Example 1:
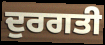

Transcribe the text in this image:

ਦੁਰਗਤੀ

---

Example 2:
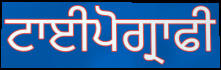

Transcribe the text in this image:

ਟਾਈਪੋਗ੍ਰਾਫੀ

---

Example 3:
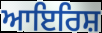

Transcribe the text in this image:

ਆਇਰਿਸ਼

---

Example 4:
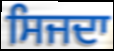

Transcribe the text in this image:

ਸਿਜਦਾ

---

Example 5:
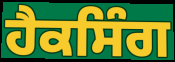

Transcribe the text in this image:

ਹੈਕਸਿੰਗ